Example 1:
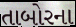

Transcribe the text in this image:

તાબોરના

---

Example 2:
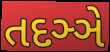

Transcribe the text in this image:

તદઞ્ઞે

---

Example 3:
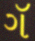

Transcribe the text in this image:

ગૅ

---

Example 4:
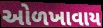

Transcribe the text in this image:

ઓળખાવાય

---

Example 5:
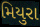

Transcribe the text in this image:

મિયુરા